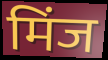
मिंज